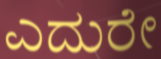
ಎದುರೇ